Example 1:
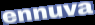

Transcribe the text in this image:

ennuva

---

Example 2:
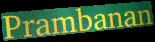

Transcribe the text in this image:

Prambanan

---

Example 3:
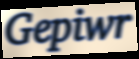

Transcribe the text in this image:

Gepiwr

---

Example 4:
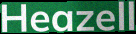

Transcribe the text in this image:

Heazell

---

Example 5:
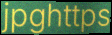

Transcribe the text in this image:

jpghttps